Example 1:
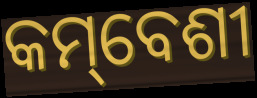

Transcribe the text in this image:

କମ୍‌ବେଶୀ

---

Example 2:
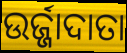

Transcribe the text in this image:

ଉର୍ଜ୍ଜାଦାତା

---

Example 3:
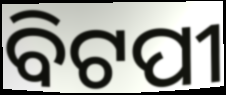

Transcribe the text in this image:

ବିଟପୀ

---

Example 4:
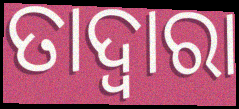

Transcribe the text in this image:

ତାଦ୍ଵାରା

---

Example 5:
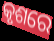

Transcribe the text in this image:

କୃଶରେ